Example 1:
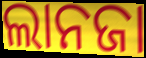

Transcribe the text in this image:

ଲାନଜା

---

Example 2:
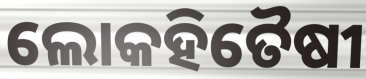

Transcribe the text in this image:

ଲୋକହିତୈଷୀ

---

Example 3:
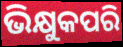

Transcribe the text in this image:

ଭିକ୍ଷୁକପରି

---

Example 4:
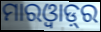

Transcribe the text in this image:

ମାରଓ୍ୱାଡ଼୍‌ର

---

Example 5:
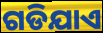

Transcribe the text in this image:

ଗଡିଯାଏ